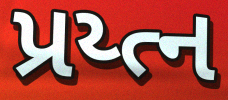
પ્રય્ત્ન